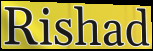
Rishad